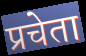
प्रचेता